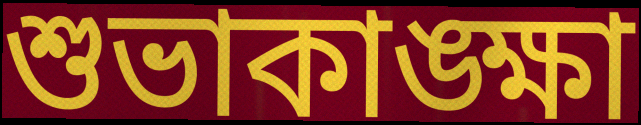
শুভাকাঙ্ক্ষা